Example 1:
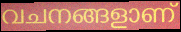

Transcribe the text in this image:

വചനങ്ങളാണ്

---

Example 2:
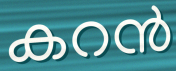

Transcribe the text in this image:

കറൻ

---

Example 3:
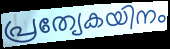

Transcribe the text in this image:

പ്രത്യേകയിനം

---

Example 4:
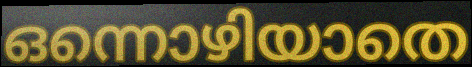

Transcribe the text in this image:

ഒന്നൊഴിയാതെ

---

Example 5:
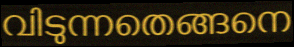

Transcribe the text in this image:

വിടുന്നതെങ്ങനെ